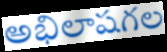
అభిలాషగల